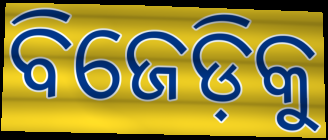
ବିଜେଡ଼ିକୁ